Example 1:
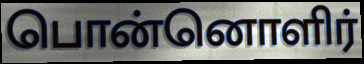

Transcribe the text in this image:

பொன்னொளிர்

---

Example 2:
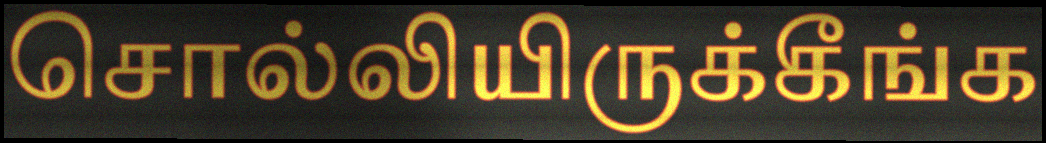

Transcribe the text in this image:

சொல்லியிருக்கீங்க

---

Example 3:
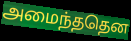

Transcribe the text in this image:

அமைந்ததென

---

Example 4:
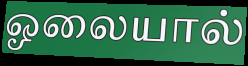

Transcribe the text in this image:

ஓலையால்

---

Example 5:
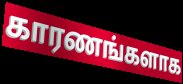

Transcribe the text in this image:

காரணங்களாக